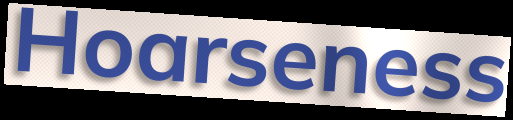
Hoarseness